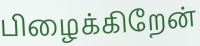
பிழைக்கிறேன்